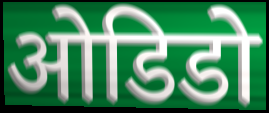
ओडिडो